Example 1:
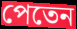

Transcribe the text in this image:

পেতেন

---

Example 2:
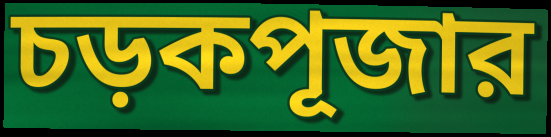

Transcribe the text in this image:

চড়কপূজার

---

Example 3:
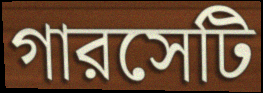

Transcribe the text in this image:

গারসেটি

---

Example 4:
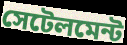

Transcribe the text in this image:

সেটেলমেন্ট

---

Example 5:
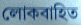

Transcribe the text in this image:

লোকবাহিত